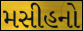
મસીહનો